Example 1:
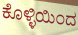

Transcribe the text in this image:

ಕೊಳ್ಳಿಯಿಂದ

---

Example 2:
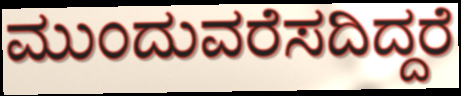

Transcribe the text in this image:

ಮುಂದುವರೆಸದಿದ್ದರೆ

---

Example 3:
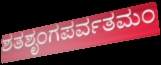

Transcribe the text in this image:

ಶತಶೃಂಗಪರ್ವತಮಂ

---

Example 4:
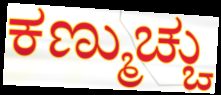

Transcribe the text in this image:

ಕಣ್ಮುಚ್ಚು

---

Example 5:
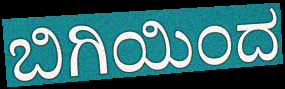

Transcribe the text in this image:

ಬಿಗಿಯಿಂದ